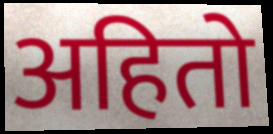
अहितो